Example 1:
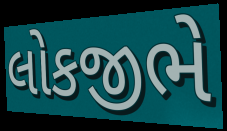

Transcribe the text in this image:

લોકજીભે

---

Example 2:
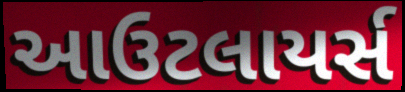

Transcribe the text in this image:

આઉટલાયર્સ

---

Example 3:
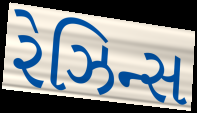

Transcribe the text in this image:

રેઝિન્સ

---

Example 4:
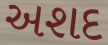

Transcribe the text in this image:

અશદ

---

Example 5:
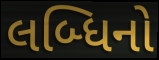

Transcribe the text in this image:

લબ્ધિનો